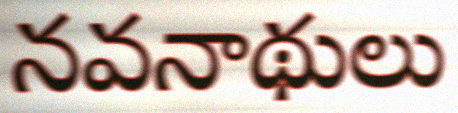
నవనాథులు